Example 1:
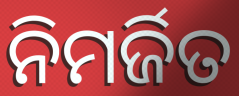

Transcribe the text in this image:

ନିମର୍ଜିତ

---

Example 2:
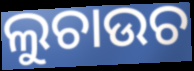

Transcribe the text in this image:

ଲୁଚାଉଚ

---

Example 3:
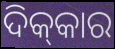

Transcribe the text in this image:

ଦିକ୍‌କାର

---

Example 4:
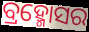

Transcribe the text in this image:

ବ୍ରହ୍ମୋସର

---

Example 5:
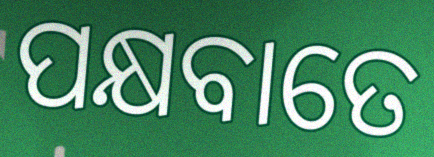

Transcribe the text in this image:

ପକ୍ଷବାତେ